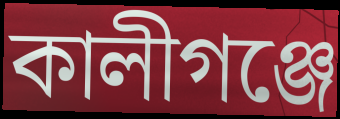
কালীগঞ্জে